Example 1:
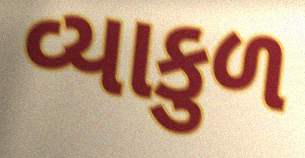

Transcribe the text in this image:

વ્યાકુળ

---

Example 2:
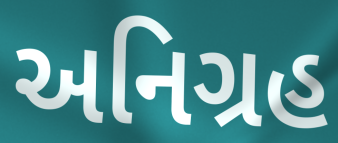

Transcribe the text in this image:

અનિગ્રહ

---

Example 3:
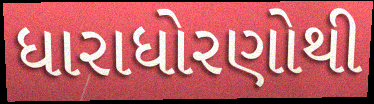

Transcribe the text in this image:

ધારાધોરણોથી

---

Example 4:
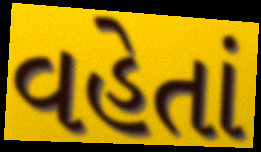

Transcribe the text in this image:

વહેતાં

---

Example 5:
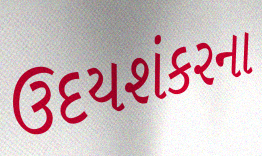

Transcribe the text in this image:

ઉદયશંકરના